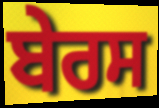
ਬੇਰਸ